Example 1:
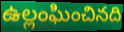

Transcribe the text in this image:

ఉల్లంఘించినది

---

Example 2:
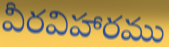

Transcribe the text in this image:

వీరవిహారము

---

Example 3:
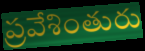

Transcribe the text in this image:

ప్రవేశింతురు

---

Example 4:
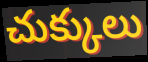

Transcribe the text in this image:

చుక్కులు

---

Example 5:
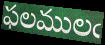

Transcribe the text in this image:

ఫలములఁ